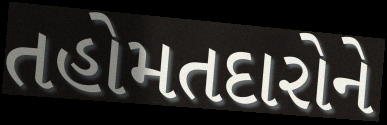
તહોમતદારોને